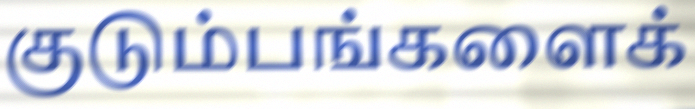
குடும்பங்களைக்